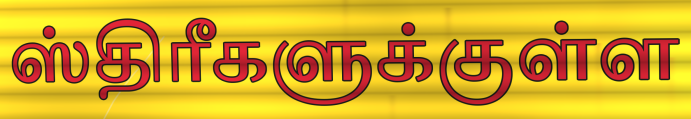
ஸ்திரீகளுக்குள்ள